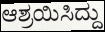
ಆಶ್ರಯಿಸಿದ್ದು